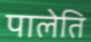
पालेति